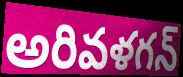
అరివళగన్